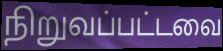
நிறுவப்பட்டவை